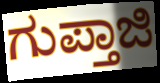
ಗುಪ್ತಾಜಿ